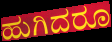
ಹುಗಿದರೂ